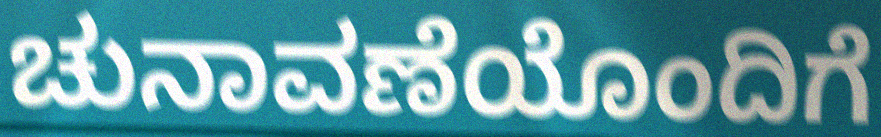
ಚುನಾವಣೆಯೊಂದಿಗೆ